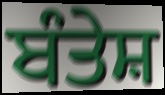
ਬੰਤੇਸ਼